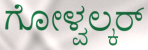
ಗೋಳ್ವಲ್ಕರ್